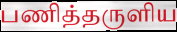
பணித்தருளிய